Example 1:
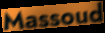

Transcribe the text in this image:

Massoud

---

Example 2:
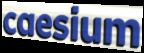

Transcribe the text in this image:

caesium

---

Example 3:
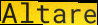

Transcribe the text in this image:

Altare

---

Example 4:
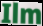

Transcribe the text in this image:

Ilm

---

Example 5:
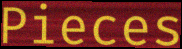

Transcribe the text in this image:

Pieces